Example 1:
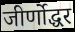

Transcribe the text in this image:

जीर्णोद्धर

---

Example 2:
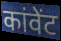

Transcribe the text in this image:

कांवेंट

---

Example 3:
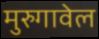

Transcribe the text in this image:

मुरुगावेल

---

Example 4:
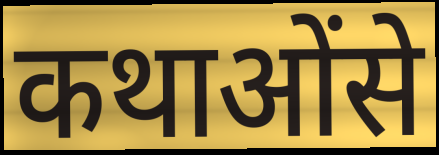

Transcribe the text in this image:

कथाओंसे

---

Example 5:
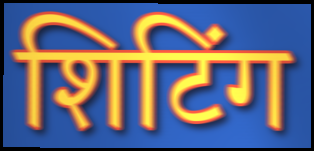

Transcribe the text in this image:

शिटिंग